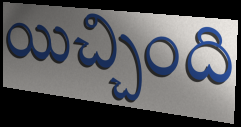
యిచ్చింది